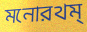
মনোরথম্